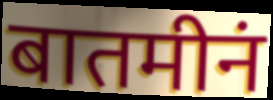
बातमीनं